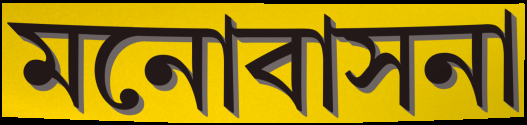
মনোবাসনা